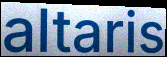
altaris